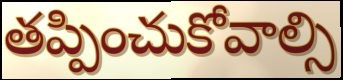
తప్పించుకోవాల్సి